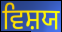
ਵਿਸ਼ਯ